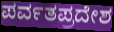
ಪರ್ವತಪ್ರದೇಶ